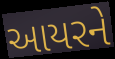
આયરને